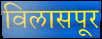
विलासपूर